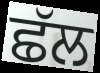
ਛੱਲ